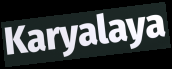
Karyalaya